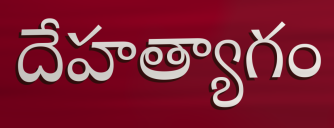
దేహత్యాగం